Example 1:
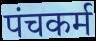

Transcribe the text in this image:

पंचकर्म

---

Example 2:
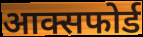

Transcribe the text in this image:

आक्सफोर्ड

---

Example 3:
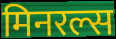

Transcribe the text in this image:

मिनरल्स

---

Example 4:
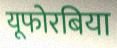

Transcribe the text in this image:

यूफोरबिया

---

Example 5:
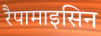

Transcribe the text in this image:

रैपामाइसिन